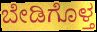
ಬೇಡಿಗೊಳ್ತ